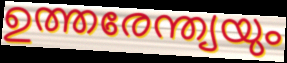
ഉത്തരേന്ത്യയും